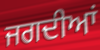
ਜਗਦੀਆਂ